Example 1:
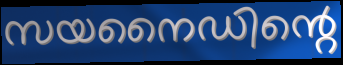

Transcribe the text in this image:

സയനൈഡിന്റെ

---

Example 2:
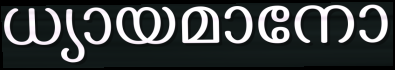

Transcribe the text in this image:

ധ്യായമാനോ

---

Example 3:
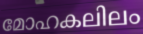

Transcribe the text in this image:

മോഹകലിലം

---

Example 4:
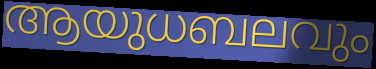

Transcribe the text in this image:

ആയുധബലവും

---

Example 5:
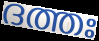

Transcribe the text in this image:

ദത്തഃ